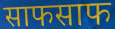
साफसाफ